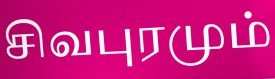
சிவபுரமும்